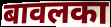
बावलका